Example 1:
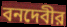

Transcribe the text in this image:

বনদেবীর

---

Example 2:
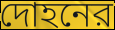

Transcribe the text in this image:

দোহনের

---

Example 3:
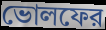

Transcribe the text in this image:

ভোলফের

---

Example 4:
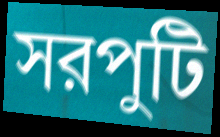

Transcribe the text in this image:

সরপুটি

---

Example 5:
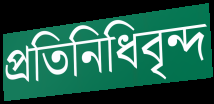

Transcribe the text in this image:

প্রতিনিধিবৃন্দ